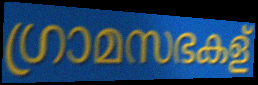
ഗ്രാമസഭകള്